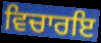
ਵਿਚਾਰਇ